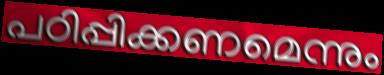
പഠിപ്പിക്കണമെന്നും